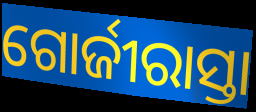
ଗୋର୍ଜୀରାସ୍ତା